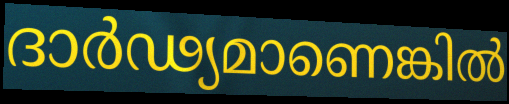
ദാർഢ്യമാണെങ്കിൽ